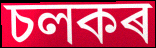
চলকৰ